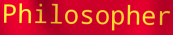
Philosopher